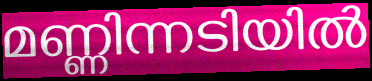
മണ്ണിന്നടിയിൽ